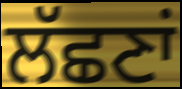
ਲੱਛਣਾਂ